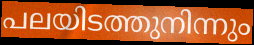
പലയിടത്തുനിന്നും